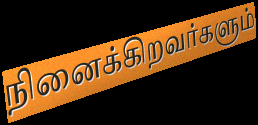
நினைக்கிறவர்களும்